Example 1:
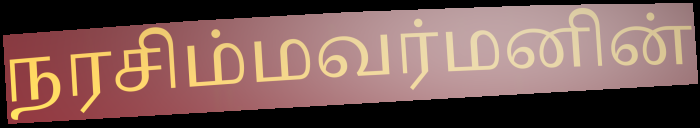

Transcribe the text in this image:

நரசிம்மவர்மனின்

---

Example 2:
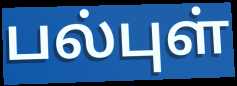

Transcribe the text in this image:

பல்புள்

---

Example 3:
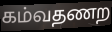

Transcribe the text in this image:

கம்வதணற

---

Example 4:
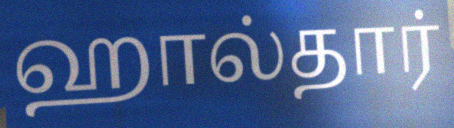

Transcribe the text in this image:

ஹால்தார்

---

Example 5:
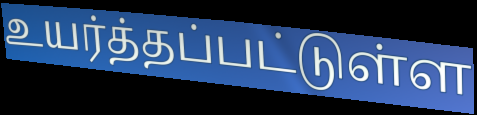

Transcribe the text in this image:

உயர்த்தப்பட்டுள்ள